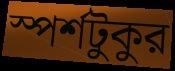
স্পর্শটুকুর